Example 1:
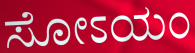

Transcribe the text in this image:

ಸೋಽಯಂ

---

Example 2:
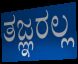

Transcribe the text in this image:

ತಜ್ಞರಲ್ಲ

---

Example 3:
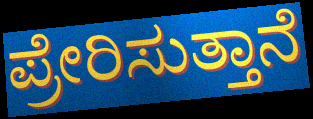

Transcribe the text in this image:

ಪ್ರೇರಿಸುತ್ತಾನೆ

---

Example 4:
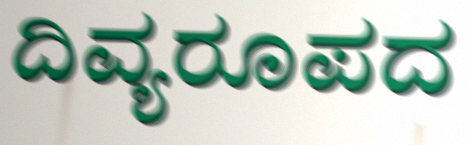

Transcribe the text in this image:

ದಿವ್ಯರೂಪದ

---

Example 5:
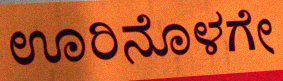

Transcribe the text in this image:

ಊರಿನೊಳಗೇ